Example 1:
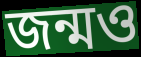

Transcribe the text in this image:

জন্মও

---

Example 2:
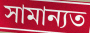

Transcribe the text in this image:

সামান্যত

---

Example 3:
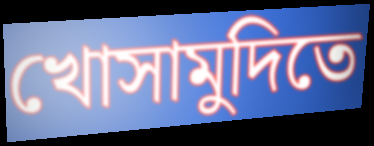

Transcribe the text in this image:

খোসামুদিতে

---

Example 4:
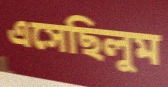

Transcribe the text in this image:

এসেছিলুম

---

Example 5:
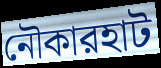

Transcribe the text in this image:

নৌকারহাট